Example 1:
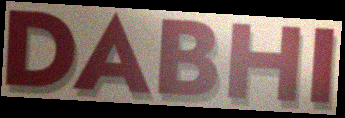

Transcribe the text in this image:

DABHI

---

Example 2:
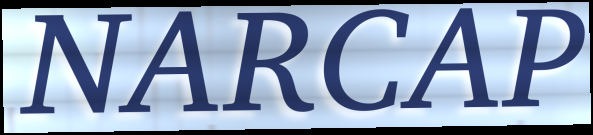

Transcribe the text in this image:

NARCAP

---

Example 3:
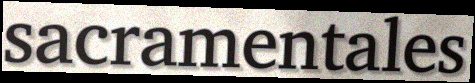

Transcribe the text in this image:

sacramentales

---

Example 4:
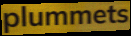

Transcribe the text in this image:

plummets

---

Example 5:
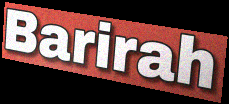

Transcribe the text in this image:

Barirah